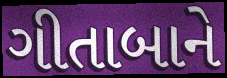
ગીતાબાને